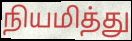
நியமித்து